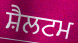
ਸ਼ੈਲਟਮ